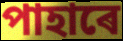
পাহাৰে